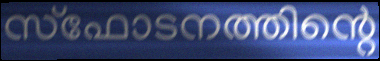
സ്ഫോടനത്തിന്റെ